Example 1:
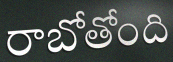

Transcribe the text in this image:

రాబోతోంది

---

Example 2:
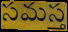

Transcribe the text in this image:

సమస్త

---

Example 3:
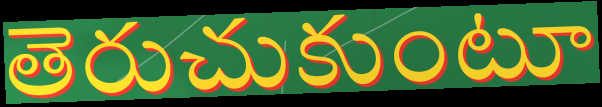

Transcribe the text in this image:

తెరుచుకుంటూ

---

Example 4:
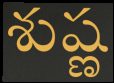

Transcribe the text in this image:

శుష్ణ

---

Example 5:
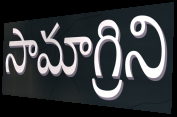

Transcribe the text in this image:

సామాగ్రిని